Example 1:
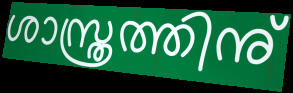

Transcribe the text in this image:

ശാസ്ത്രത്തിനു്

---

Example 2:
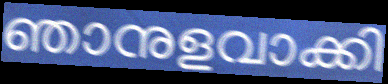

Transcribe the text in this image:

ഞാനുളവാക്കി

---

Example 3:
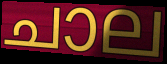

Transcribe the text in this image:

ചാല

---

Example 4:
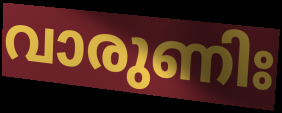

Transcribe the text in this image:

വാരുണിഃ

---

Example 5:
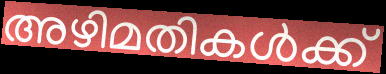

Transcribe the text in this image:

അഴിമതികൾക്ക്